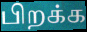
பிறக்க